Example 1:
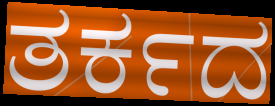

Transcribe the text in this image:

ತರ್ಕದ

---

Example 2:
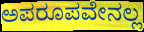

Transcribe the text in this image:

ಅಪರೂಪವೇನಲ್ಲ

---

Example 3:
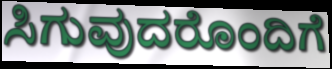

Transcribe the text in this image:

ಸಿಗುವುದರೊಂದಿಗೆ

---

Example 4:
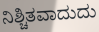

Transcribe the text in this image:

ನಿಶ್ಚಿತವಾದುದು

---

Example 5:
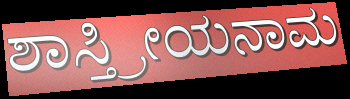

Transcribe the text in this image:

ಶಾಸ್ತ್ರೀಯನಾಮ